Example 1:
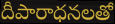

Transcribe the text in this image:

దీపారాధనలతో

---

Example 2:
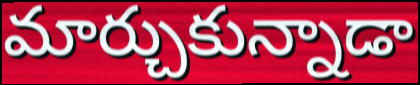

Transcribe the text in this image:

మార్చుకున్నాడా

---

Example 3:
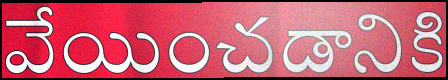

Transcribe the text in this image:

వేయించడానికి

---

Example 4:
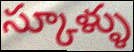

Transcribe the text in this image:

స్కూళ్ళు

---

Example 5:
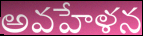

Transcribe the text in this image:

అవహేళన